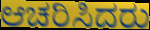
ಆಚರಿಸಿದರು